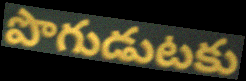
పొగుడుటకు